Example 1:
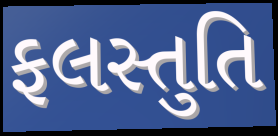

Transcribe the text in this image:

ફલસ્તુતિ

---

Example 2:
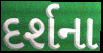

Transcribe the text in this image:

દર્શના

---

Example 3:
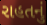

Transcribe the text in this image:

રાહતનું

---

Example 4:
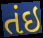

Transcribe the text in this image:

તંઇ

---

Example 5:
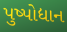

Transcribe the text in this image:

પુષ્પોદ્યાન